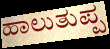
ಹಾಲುತುಪ್ಪ